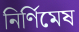
নির্ণিমেষ